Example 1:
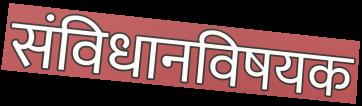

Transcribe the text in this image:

संविधानविषयक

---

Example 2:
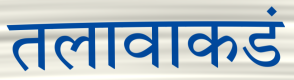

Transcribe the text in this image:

तलावाकडं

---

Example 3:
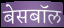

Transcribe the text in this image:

बेसबॉल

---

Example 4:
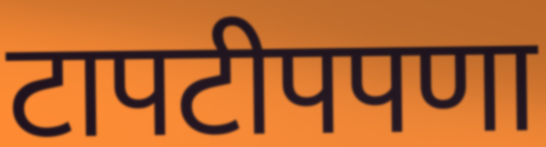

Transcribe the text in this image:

टापटीपपणा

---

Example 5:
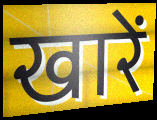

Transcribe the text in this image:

खारें